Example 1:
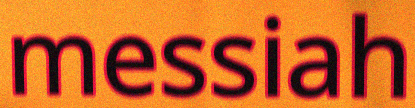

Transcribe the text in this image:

messiah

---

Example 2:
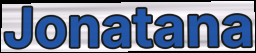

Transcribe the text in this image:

Jonatana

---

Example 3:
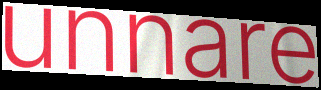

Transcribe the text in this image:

unnare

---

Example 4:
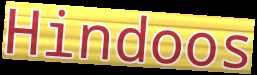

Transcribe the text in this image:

Hindoos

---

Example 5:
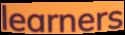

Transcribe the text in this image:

learners